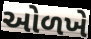
ઓળખે